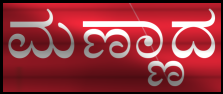
ಮಣ್ಣಾದ